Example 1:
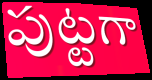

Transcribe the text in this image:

పుట్టగా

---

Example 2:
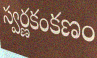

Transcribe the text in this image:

స్వర్ణకంకణం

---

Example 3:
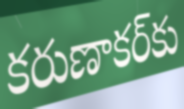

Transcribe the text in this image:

కరుణాకర్‌కు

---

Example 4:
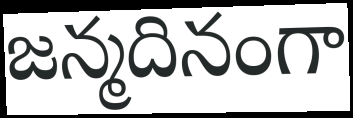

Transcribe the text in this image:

జన్మదినంగా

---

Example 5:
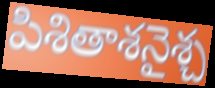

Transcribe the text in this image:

పిశితాశనైశ్చ